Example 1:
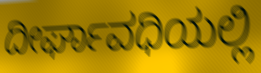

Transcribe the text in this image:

ದೀರ್ಘಾವಧಿಯಲ್ಲಿ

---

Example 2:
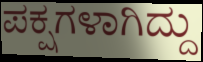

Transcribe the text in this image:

ಪಕ್ಷಗಳಾಗಿದ್ದು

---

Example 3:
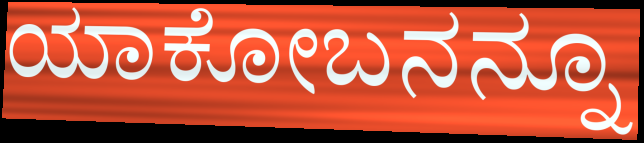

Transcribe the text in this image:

ಯಾಕೋಬನನ್ನೂ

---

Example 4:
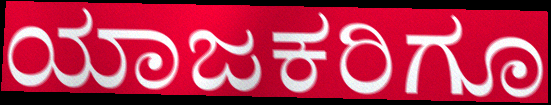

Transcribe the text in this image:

ಯಾಜಕರಿಗೂ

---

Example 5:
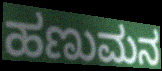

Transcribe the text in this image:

ಹಣುಮನ